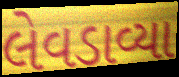
લેવડાવ્યા